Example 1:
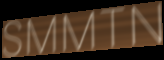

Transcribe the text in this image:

SMMTN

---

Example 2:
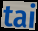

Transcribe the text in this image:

tai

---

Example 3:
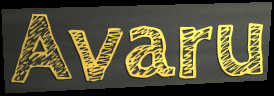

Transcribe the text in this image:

Avaru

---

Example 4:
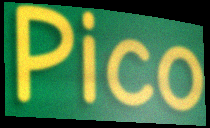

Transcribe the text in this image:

Pico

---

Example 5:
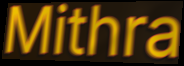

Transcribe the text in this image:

Mithra